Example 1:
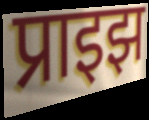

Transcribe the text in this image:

प्राइझ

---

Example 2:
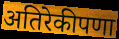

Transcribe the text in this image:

अतिरेकीपणा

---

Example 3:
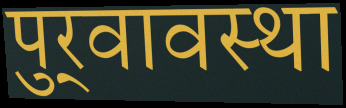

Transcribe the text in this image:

पुर्वावस्था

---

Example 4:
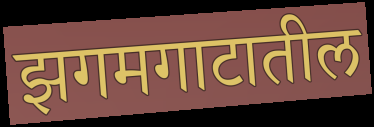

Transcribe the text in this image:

झगमगाटातील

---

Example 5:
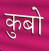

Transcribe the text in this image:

कुबो